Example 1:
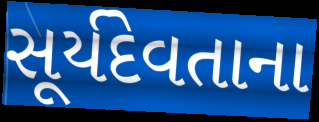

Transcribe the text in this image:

સૂર્યદેવતાના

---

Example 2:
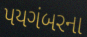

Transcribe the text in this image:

પયગંબરના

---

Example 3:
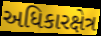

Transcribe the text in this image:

અધિકારક્ષેત્ર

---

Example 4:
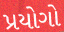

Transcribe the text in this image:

પ્રયોગો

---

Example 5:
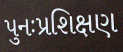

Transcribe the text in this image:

પુનઃપ્રશિક્ષણ